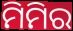
ମିମିର